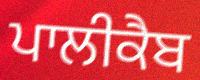
ਪਾਲੀਕੈਬ